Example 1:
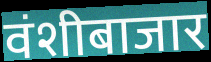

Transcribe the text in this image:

वंशीबाजार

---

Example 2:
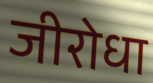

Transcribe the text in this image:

जीरोधा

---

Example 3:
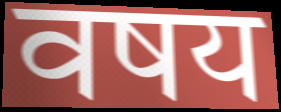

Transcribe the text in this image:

वषय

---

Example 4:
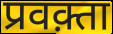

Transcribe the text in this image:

प्रवक़्ता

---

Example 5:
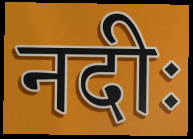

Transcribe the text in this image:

नदीः